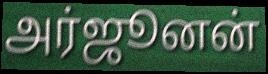
அர்ஜூனன்